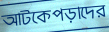
আটকেপড়াদের